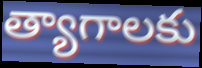
త్యాగాలకు